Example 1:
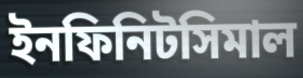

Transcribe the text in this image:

ইনফিনিটসিমাল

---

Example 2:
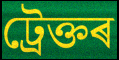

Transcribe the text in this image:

ট্ৰেক্তৰ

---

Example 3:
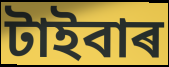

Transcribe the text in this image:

টাইবাৰ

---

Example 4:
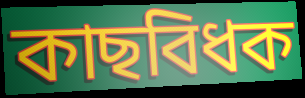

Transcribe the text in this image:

কাছবিধক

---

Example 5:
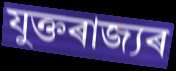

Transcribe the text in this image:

যুক্তৰাজ্যৰ